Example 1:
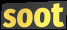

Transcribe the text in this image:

soot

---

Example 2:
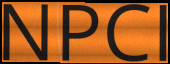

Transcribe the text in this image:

NPCI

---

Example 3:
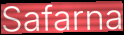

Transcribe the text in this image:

Safarna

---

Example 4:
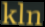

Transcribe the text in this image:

kln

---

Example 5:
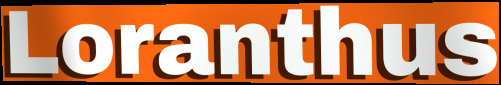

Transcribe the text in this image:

Loranthus